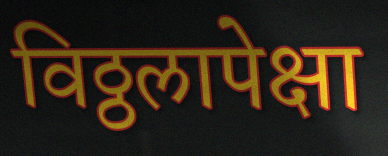
विठ्ठलापेक्षा